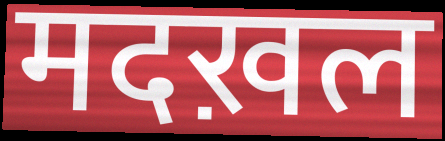
मदख़ल